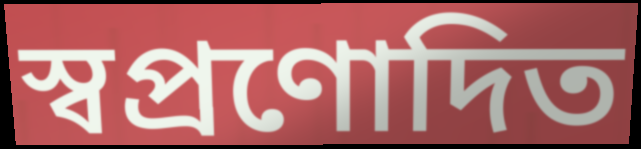
স্বপ্রণোদিত